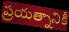
ప్రయత్నానికీ